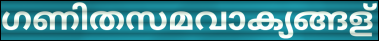
ഗണിതസമവാക്യങ്ങള്